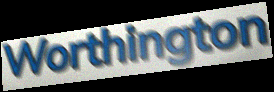
Worthington